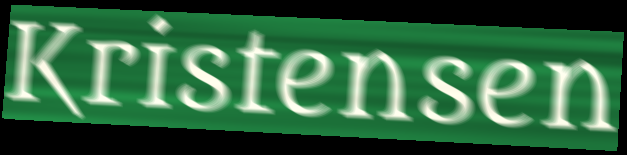
Kristensen